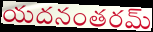
యదనంతరమ్